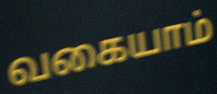
வகையாம்